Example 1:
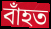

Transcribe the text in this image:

বাঁহত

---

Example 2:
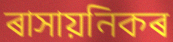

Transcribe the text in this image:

ৰাসায়নিকৰ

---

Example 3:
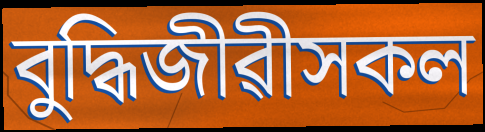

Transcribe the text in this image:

বুদ্ধিজীৱীসকল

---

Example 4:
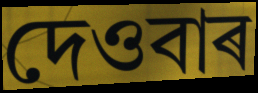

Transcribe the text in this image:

দেওবাৰ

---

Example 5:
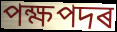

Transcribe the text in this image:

পক্ষপদৰ